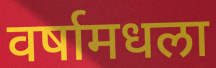
वर्षामधला